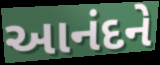
આનંદને